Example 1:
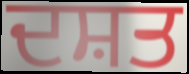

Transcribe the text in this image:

ਦਸ਼ਤ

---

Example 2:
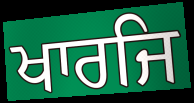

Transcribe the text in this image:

ਖਾਰਜਿ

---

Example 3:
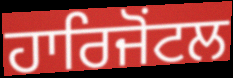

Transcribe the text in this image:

ਹਾਰਿਜੋਂਟਲ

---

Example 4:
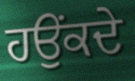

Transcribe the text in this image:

ਹਉਂਕਦੇ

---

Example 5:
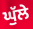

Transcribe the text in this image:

ਘੁੱਲੇ